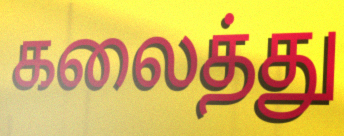
கலைத்து